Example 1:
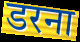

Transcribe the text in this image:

डरना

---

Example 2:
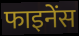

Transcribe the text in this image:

फाइनेंस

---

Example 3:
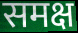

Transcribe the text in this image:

समक्ष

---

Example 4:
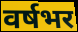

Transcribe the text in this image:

वर्षभर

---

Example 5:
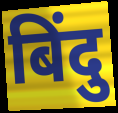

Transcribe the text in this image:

बिंदु